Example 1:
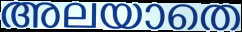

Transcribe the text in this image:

അലയാതെ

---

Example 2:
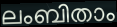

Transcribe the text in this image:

ലംബിതാം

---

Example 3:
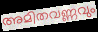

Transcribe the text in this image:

അമിതവണ്ണവും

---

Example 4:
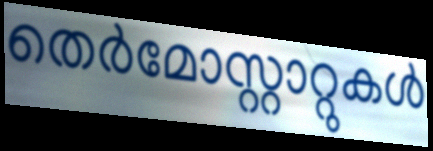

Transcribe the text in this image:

തെർമോസ്റ്റാറ്റുകൾ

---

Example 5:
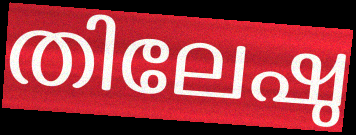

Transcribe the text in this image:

തിലേഷു